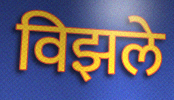
विझले